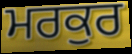
ਮਰਕੁਰ